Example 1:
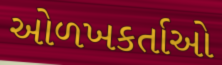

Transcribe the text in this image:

ઓળખકર્તાઓ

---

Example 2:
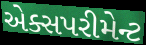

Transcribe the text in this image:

એક્સપરીમેન્ટ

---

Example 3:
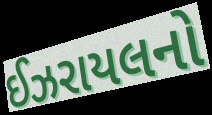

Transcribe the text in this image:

ઈઝરાયલનો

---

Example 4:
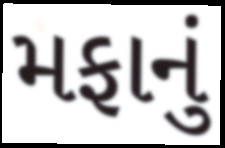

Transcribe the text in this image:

મફાનું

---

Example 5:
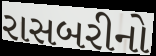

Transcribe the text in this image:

રાસબરીનો